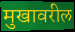
मुखावरील